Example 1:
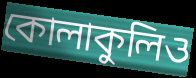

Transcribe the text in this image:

কোলাকুলিও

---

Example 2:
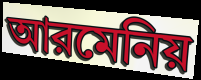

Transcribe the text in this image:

আরমেনিয়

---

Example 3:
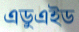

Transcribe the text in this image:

এডুএইড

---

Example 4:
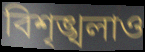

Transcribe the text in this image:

বিশৃঙ্খলাও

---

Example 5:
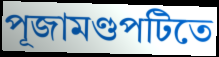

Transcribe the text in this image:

পূজামণ্ডপটিতে